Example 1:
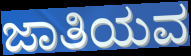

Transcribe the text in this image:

ಜಾತಿಯವ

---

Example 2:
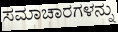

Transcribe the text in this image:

ಸಮಾಚಾರಗಳನ್ನು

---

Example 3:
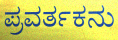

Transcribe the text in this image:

ಪ್ರವರ್ತಕನು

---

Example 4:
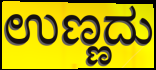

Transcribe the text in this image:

ಉಣ್ಣದು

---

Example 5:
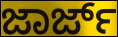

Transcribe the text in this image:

ಜಾರ್ಜ್